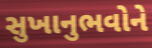
સુખાનુભવોને